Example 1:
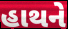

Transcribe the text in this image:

હાથને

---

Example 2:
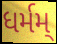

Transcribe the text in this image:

ધર્મમ્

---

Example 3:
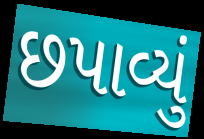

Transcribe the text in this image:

છપાવ્યું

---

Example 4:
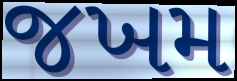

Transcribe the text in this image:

જખમ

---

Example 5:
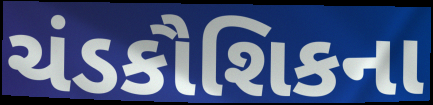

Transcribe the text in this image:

ચંડકૌશિકના